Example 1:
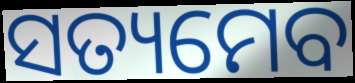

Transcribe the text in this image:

ସତ୍ୟମେବ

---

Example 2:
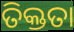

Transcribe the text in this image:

ତିକ୍ତତା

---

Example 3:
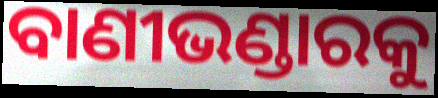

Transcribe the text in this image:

ବାଣୀଭଣ୍ଡାରକୁ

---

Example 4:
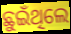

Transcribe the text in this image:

ଛୁଇଁଥିଲେ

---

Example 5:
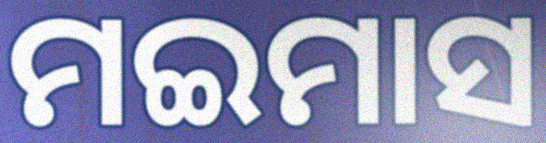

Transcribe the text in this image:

ମଇମାସ